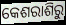
କେଶରାଶିରୁ